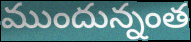
ముందున్నంత